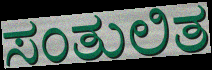
ಸಂತುಲಿತ